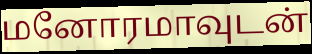
மனோரமாவுடன்